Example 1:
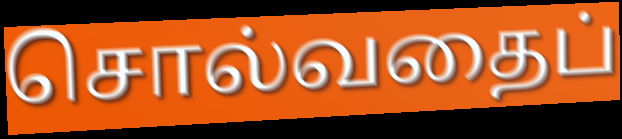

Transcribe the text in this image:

சொல்வதைப்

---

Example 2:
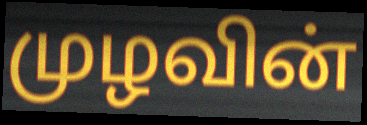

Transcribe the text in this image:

முழவின்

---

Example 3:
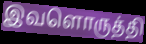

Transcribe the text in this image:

இவளொருத்தி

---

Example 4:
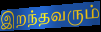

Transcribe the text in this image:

இறந்தவரும்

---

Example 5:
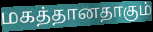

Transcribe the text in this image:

மகத்தானதாகும்